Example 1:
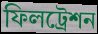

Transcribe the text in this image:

ফিলট্রেশন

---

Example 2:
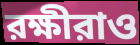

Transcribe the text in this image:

রক্ষীরাও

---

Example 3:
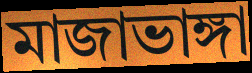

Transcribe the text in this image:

মাজাভাঙ্গা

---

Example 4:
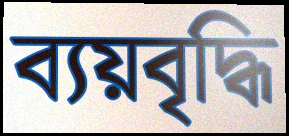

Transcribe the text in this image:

ব্যয়বৃদ্ধি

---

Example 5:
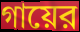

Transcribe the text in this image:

গায়ের